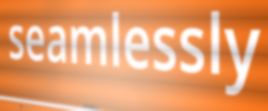
seamlessly